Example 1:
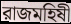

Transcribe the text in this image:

রাজমহিষী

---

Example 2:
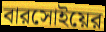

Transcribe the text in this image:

বারসোইয়ের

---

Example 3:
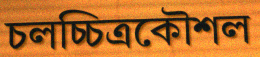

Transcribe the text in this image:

চলচ্চিত্রকৌশল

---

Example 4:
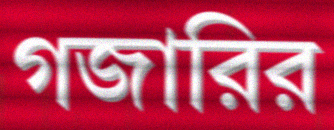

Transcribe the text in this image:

গজারির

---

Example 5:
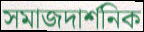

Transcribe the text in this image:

সমাজদার্শনিক